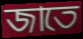
জাতে